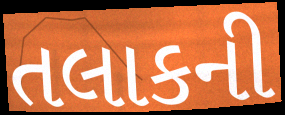
તલાકની